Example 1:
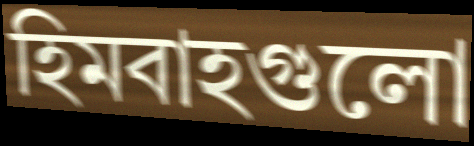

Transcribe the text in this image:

হিমবাহগুলো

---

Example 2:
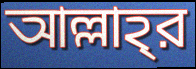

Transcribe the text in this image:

আল্লাহ্‌র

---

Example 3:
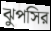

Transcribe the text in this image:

ঝুপসির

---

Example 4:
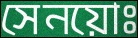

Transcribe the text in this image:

সেনয়োঃ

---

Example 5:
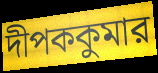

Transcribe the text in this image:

দীপককুমার